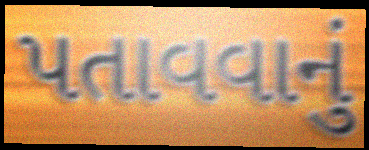
પતાવવાનું